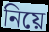
নিয়ে